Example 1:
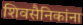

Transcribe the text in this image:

शिवसैनिकांना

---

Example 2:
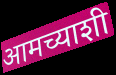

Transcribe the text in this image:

आमच्याशी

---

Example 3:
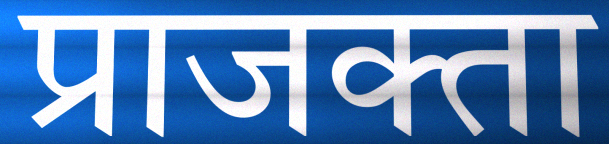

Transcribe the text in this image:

प्राजक्ता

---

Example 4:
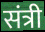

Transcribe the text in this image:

संत्री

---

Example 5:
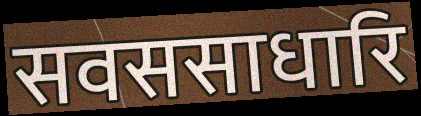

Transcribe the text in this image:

सवससाधारि